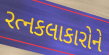
રત્નકલાકારોને